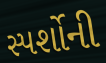
સ્પર્શોની